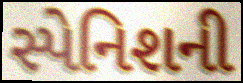
સ્પેનિશની